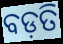
ବଡ଼ତି